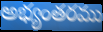
అభ్యంతరము